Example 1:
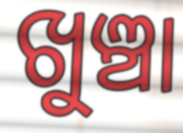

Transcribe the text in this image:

ଖୁଞ୍ଚା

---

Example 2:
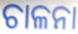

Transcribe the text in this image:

ଚାଳନା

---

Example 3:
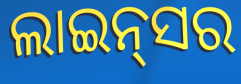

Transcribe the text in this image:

ଲାଇନ୍‌ସର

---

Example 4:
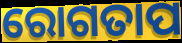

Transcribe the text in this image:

ରୋଗତାପ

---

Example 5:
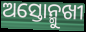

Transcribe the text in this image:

ଅସ୍ତୋନ୍ମୁଖୀ